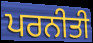
ਪਰਨੀਤੀ